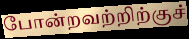
போன்றவற்றிற்குச்